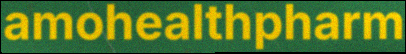
amohealthpharm